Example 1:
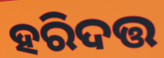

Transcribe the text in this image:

ହରିଦତ୍ତ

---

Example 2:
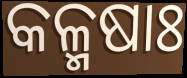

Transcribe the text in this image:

କଳ୍ମଷାଃ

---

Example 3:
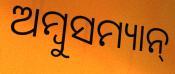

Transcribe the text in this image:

ଅମ୍ବୁସମ୍ୟାନ୍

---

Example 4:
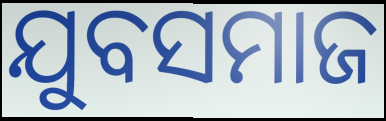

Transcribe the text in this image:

ଯୁବସମାଜ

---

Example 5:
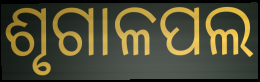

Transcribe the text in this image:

ଶୃଗାଳପଲ